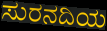
ಸುರನದಿಯ